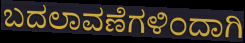
ಬದಲಾವಣೆಗಳಿಂದಾಗಿ